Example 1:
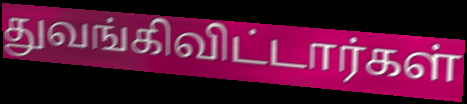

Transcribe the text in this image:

துவங்கிவிட்டார்கள்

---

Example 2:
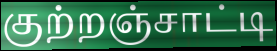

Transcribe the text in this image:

குற்றஞ்சாட்டி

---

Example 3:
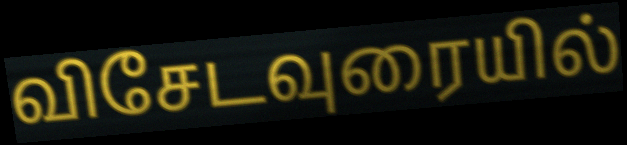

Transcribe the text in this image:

விசேடவுரையில்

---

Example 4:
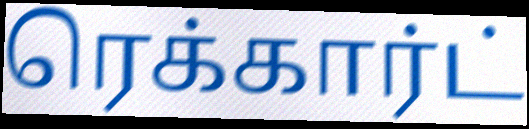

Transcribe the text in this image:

ரெக்கார்ட்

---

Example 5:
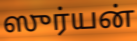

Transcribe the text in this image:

ஸுர்யன்